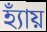
হ্যাঁয়